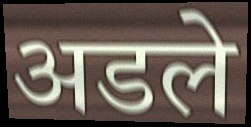
अडले